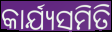
କାର୍ଯ୍ୟସମିତି